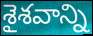
శైశవాన్ని